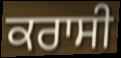
ਕਰਾਸੀ